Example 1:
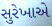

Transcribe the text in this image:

સુરેખાએ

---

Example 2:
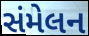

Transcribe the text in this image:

સંમેલન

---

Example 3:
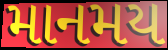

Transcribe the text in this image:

માનમય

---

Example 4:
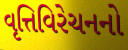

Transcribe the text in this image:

વૃત્તિવિરેચનનો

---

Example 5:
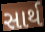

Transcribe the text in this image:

સાર્થ